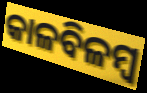
କାଳବିଳମ୍ବ